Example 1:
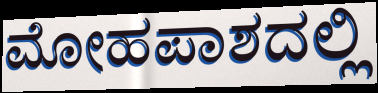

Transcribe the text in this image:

ಮೋಹಪಾಶದಲ್ಲಿ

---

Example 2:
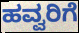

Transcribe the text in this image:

ಹವ್ವರಿಗೆ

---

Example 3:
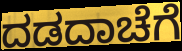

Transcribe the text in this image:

ದಡದಾಚೆಗೆ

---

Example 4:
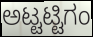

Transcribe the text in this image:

ಅಟ್ಟಟ್ಟಿಗಂ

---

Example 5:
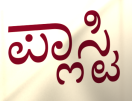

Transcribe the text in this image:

ಪ್ಲಾಸ್ಟಿ